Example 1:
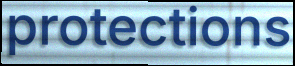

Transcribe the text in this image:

protections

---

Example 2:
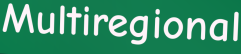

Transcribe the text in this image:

Multiregional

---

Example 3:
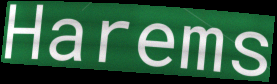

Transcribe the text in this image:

Harems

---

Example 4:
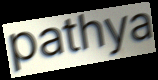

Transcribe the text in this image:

pathya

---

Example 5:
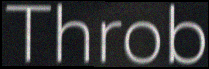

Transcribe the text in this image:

Throb